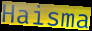
Haisma